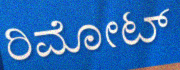
ರಿಮೋಟ್